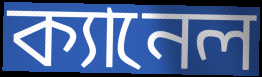
ক্যানেল